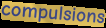
compulsions